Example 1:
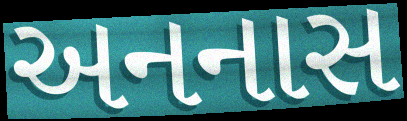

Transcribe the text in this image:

અનનાસ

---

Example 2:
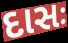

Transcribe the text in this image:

દાસઃ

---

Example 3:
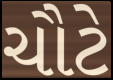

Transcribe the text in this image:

ચૌટે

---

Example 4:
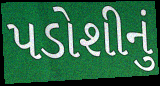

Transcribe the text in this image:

પડોશીનું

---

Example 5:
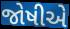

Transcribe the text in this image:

જોષીએ